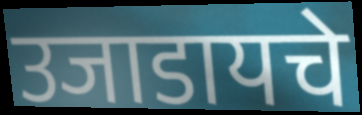
उजाडायचे